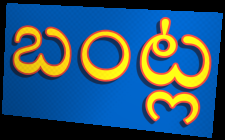
బంట్ల